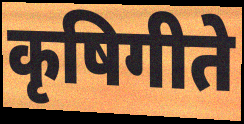
कृषिगीते